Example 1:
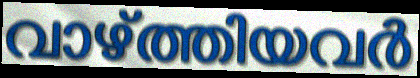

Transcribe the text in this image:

വാഴ്ത്തിയവർ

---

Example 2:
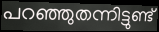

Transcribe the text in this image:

പറഞ്ഞുതന്നിട്ടുണ്ട്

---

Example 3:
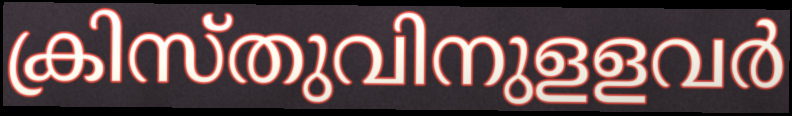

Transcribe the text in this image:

ക്രിസ്തുവിനുളളവർ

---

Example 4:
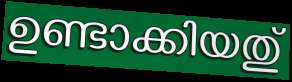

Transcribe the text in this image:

ഉണ്ടാക്കിയതു്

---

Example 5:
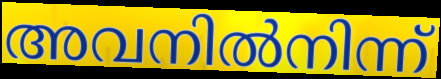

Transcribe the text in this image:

അവനിൽനിന്ന്